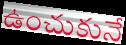
ఉంచుకునే